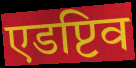
एडप्टिव